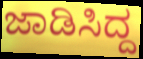
ಜಾಡಿಸಿದ್ದ